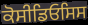
ਕੋਸੀਡਿਓਸਿਸ